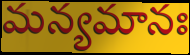
మన్యమానః